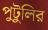
পুটুলির